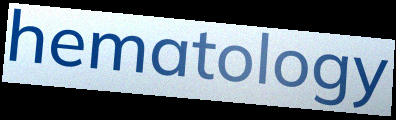
hematology